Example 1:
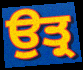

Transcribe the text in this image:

ਉਤ੍ਰ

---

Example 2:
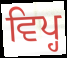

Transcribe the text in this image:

ਵਿਪ੍ਹ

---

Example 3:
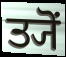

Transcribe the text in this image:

ਤ੍ਯੋਂ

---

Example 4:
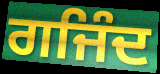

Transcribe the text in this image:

ਗਜਿੰਦ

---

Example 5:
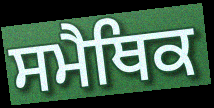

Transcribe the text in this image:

ਸਮੈਥਿਕ